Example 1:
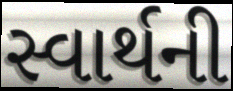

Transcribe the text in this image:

સ્વાર્થની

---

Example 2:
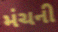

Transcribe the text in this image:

મંચની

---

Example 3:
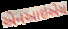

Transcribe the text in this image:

એનઆઇએચ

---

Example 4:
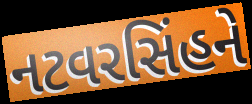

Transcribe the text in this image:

નટવરસિંહને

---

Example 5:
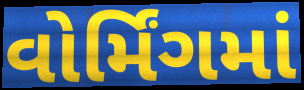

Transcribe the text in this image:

વોર્મિંગમાં